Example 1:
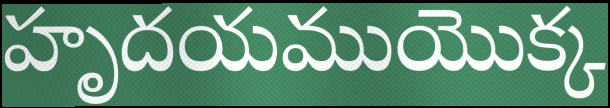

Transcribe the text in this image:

హృదయముయొక్క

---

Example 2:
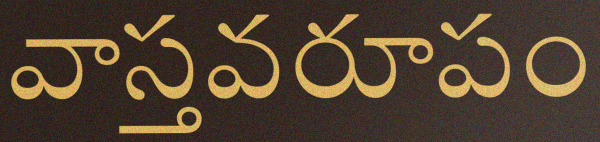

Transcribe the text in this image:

వాస్తవరూపం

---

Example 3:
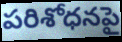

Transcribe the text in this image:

పరిశోధనపై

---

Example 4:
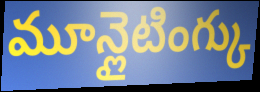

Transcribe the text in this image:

మూన్లైటింగ్కు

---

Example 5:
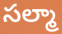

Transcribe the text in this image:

సల్మా